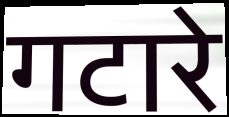
गटारे